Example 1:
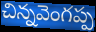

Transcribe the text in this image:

చిన్నవెంగప్ప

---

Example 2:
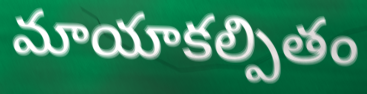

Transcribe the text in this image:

మాయాకల్పితం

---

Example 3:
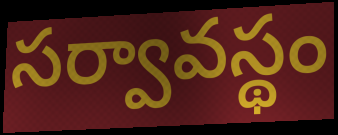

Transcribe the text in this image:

సర్వావస్థం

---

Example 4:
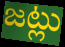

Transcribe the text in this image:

జట్లు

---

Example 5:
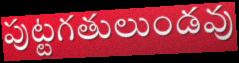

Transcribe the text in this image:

పుట్టగతులుండవు